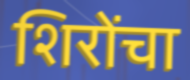
शिरोंचा